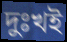
দুঃখই